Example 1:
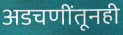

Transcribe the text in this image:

अडचणींतूनही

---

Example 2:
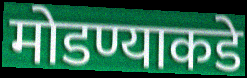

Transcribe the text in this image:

मोडण्याकडे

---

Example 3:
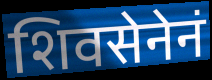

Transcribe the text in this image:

शिवसेनेनं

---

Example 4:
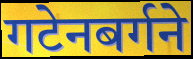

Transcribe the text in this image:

गटेनबर्गने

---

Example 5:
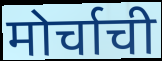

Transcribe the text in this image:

मोर्चाची